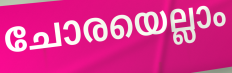
ചോരയെല്ലാം